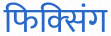
फिक्‍सिंग